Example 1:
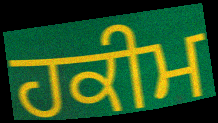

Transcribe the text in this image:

ਹਕੀਮ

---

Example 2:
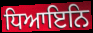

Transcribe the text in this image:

ਧਿਆਇਨਿ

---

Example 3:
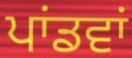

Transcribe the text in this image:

ਪਾਂਡਵਾਂ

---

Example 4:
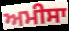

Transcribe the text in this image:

ਅਮੀਸਾ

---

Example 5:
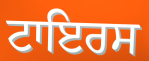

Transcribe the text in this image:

ਟਾਇਰਸ